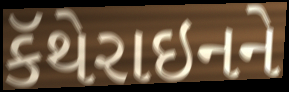
કૅથેરાઇનને